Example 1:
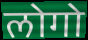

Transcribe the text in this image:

लोगो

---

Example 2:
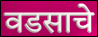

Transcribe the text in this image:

वडसाचे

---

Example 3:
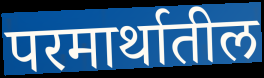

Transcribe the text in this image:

परमार्थातील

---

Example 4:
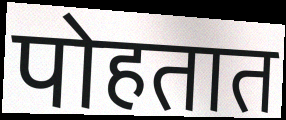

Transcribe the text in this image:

पोहतात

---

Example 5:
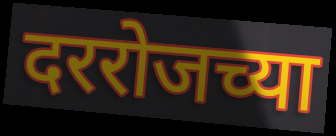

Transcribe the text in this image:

दररोजच्या